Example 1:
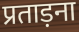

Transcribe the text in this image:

प्रताड़ना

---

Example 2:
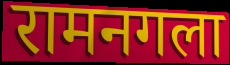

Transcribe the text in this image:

रामनगला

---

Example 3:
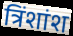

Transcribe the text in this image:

त्रिंशांश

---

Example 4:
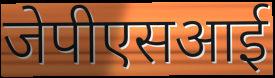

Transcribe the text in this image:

जेपीएसआई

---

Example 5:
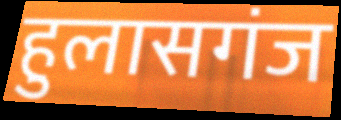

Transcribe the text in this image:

हुलासगंज